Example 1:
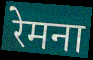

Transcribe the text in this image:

रेमना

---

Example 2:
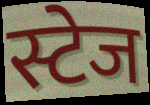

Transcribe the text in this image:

स्टेज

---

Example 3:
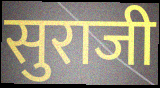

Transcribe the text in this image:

सुराजी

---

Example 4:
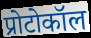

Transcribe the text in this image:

प्रोटोकॉल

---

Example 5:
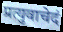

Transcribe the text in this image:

प्रत्युवाचेदं